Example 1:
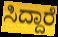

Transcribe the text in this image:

ಸಿದ್ದಾರೆ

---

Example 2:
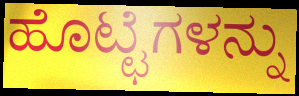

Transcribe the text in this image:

ಹೊಟ್ಟೆಗಳನ್ನು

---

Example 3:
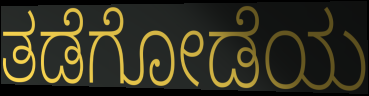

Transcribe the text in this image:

ತಡೆಗೋಡೆಯ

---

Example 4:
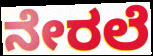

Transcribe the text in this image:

ನೇರಲೆ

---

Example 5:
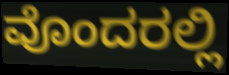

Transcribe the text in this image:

ವೊಂದರಲ್ಲಿ